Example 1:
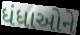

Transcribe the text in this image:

ધંધાઓને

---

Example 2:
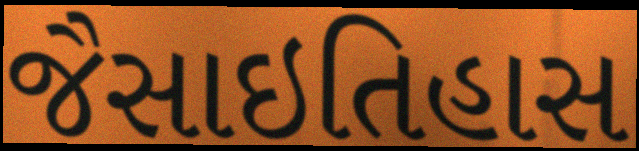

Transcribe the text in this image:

જૈસાઇતિહાસ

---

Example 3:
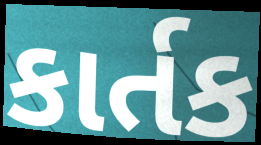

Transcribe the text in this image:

કાર્તક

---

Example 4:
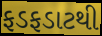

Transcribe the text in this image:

ફડફડાટથી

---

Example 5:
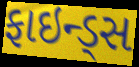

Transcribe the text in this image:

ફાઇન્ડ્સ